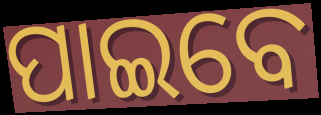
ପାଇବେ